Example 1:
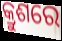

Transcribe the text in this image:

କ୍ରୁଶରେ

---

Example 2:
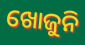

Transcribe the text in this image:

ଖୋଜୁନି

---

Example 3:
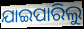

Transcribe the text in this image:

ଯାଇପାରିଲୁ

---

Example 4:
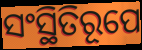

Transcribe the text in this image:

ସଂସ୍ଥିତିରୂପେ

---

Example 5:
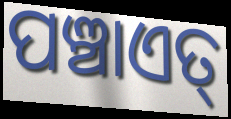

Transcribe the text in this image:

ପଞ୍ଚାଏତ୍